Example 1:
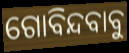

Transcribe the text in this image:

ଗୋବିନ୍ଦବାବୁ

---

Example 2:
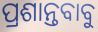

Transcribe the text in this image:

ପ୍ରଶାନ୍ତବାବୁ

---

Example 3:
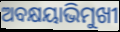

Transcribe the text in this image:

ଅବକ୍ଷୟାଭିମୁଖୀ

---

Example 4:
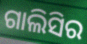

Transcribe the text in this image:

ଗାଲିସିର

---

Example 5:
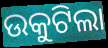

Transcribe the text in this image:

ଉକୁଟିଲା